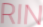
RIN